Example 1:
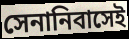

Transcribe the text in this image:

সেনানিবাসেই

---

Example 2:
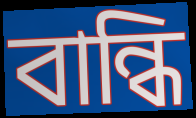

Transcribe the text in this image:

বান্ধি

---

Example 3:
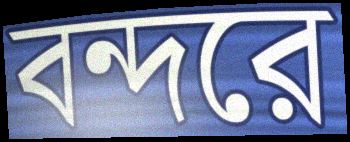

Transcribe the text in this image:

বন্দরে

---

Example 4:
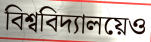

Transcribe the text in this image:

বিশ্ববিদ্যালয়েও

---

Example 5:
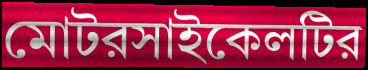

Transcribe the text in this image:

মোটরসাইকেলটির